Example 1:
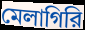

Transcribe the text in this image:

মেলাগিরি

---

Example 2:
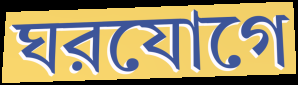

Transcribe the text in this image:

ঘরযোগে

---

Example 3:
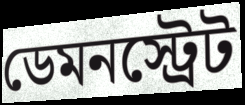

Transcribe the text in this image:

ডেমনস্ট্রেট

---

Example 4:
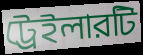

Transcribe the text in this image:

ট্রেইলারটি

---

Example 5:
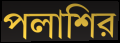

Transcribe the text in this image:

পলাশির